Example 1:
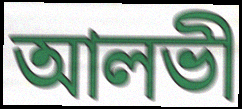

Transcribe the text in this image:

আলভী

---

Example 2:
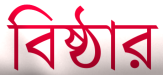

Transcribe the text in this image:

বিষ্ঠার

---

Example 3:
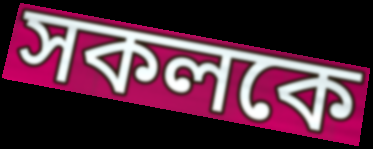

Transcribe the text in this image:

সকলকে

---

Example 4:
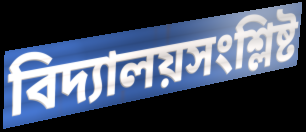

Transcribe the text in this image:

বিদ্যালয়সংশ্লিষ্ট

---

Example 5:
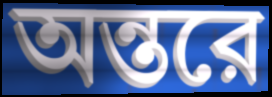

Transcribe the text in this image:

অন্তরে